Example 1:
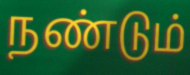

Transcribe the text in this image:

நண்டும்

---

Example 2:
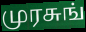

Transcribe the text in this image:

முரசுங்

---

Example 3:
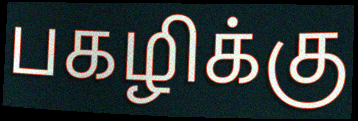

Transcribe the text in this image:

பகழிக்கு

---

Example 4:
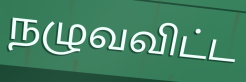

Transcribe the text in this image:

நழுவவிட்ட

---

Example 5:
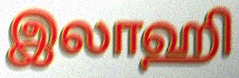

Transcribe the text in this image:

இலாஹி